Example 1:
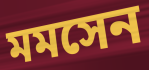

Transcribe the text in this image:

মমসেন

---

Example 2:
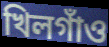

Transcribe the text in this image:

খিলগাঁও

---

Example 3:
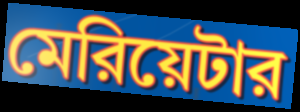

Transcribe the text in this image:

মেরিয়েটার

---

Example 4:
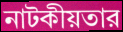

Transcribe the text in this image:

নাটকীয়তার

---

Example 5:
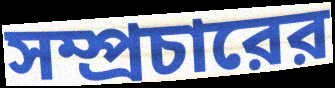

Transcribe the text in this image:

সম্প্রচারের